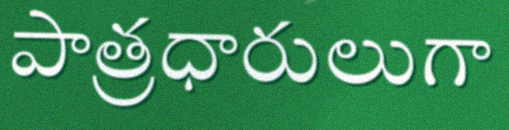
పాత్రధారులుగా